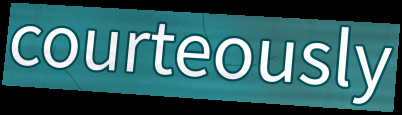
courteously